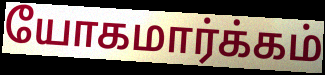
யோகமார்க்கம்